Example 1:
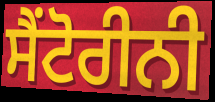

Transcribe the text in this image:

ਸੈਂਟੋਰੀਨੀ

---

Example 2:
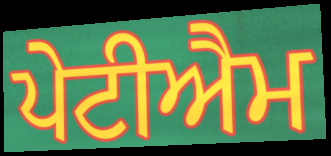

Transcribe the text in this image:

ਪੇਟੀਐਮ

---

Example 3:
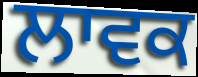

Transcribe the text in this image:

ਲਾਵਕ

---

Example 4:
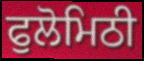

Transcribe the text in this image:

ਫੁਲੋਮਿਠੀ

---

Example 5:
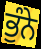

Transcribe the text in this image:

ਭੁੰਨੇ